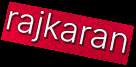
rajkaran